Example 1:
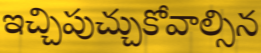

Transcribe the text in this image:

ఇచ్చిపుచ్చుకోవాల్సిన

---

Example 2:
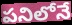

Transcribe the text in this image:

పనిలోనే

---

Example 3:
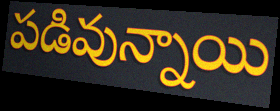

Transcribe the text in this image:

పడివున్నాయి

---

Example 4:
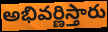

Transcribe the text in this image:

అభివర్ణిస్తారు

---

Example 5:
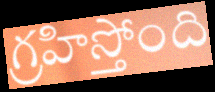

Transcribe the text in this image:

గ్రహిస్తోంది